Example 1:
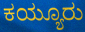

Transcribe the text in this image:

ಕಯ್ಯೂರು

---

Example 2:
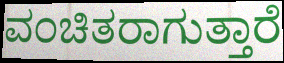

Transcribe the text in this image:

ವಂಚಿತರಾಗುತ್ತಾರೆ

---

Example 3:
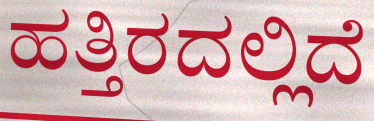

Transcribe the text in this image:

ಹತ್ತಿರದಲ್ಲಿದೆ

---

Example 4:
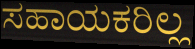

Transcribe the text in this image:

ಸಹಾಯಕರಿಲ್ಲ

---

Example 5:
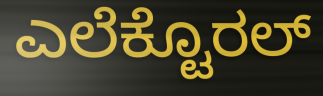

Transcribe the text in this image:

ಎಲೆಕ್ಟೊರಲ್